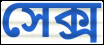
সেক্স